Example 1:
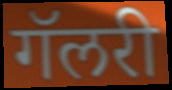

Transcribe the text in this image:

गॅलरी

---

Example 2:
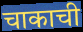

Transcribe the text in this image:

चाकाची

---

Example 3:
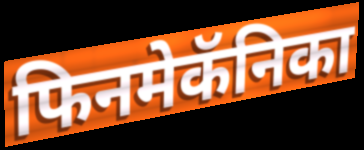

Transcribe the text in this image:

फिनमेकॅनिका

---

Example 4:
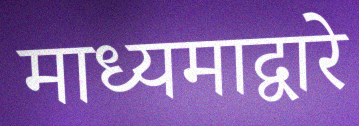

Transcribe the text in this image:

माध्यमाद्वारे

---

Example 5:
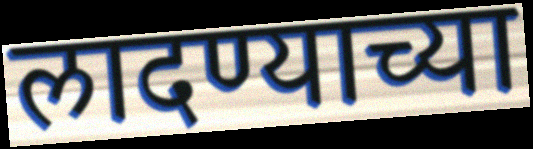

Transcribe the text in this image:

लादण्याच्या